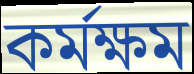
কৰ্মক্ষম